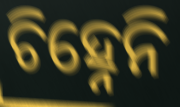
ଚିହ୍ନେନି